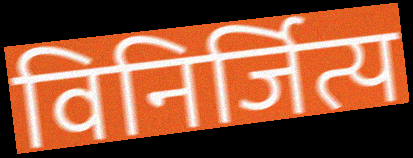
विनिर्जित्य